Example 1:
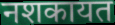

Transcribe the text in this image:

नशकायत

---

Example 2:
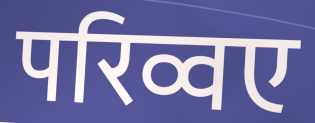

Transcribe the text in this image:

परिव्वए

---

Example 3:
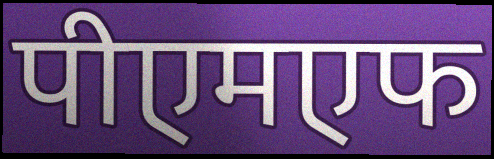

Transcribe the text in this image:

पीएमएफ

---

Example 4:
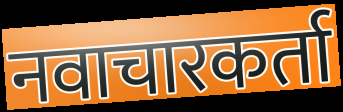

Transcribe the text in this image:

नवाचारकर्ता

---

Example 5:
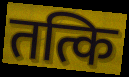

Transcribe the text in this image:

तत्कि